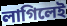
লাগিলেই